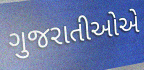
ગુજરાતીઓએ